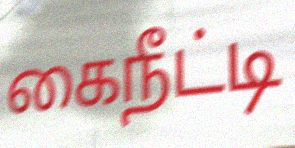
கைநீட்டி